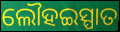
ଲୌହଇସ୍ପାତ